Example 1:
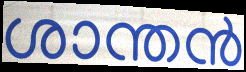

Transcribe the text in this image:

ശാന്തൻ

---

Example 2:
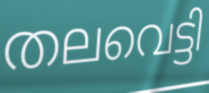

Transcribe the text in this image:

തലവെട്ടി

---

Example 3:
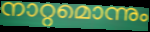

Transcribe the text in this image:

നാറ്റമൊന്നും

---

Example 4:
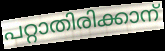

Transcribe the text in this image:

പറ്റാതിരിക്കാന്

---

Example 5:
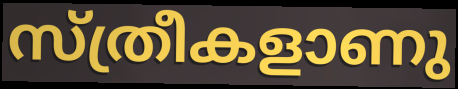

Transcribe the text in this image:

സ്ത്രീകളാണു